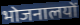
भोजनालयों